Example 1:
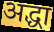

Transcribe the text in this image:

अद्धा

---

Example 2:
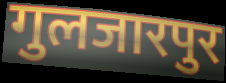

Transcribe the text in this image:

गुलजारपुर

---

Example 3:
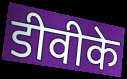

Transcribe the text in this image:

डीवीके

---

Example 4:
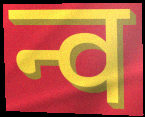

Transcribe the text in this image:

न्व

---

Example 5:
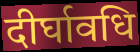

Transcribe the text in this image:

दीर्घावधि